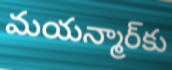
మయన్మార్‌కు